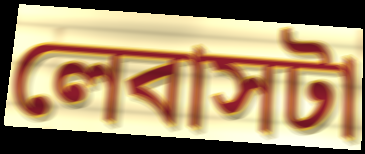
লেবাসটা